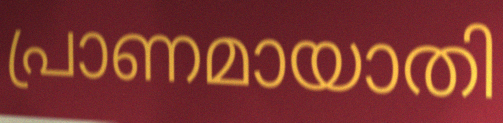
പ്രാണമായാതി